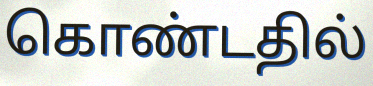
கொண்டதில்